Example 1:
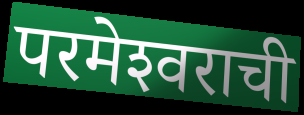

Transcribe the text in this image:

परमेश्‍वराची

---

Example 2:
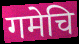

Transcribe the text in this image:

गमेचि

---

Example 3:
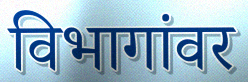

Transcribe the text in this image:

विभागांवर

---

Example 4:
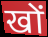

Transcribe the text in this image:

खों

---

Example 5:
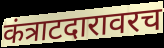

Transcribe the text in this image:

कंत्राटदारावरच